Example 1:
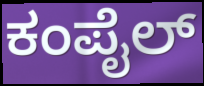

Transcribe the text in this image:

ಕಂಪೈಲ್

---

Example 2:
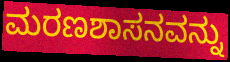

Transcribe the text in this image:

ಮರಣಶಾಸನವನ್ನು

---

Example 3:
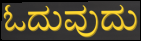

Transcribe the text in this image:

ಓದುವುದು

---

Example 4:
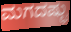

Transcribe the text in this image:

ಮಗದಷ್ಟು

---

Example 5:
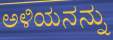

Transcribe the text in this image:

ಅಳಿಯನನ್ನು